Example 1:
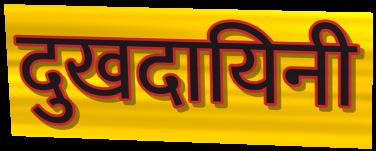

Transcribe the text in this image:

दुखदायिनी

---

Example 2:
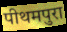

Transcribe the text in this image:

पीथमपुरा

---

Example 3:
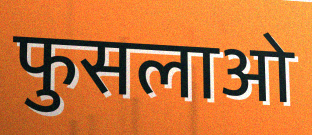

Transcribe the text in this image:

फुसलाओ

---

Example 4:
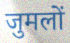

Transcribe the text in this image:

जुमलों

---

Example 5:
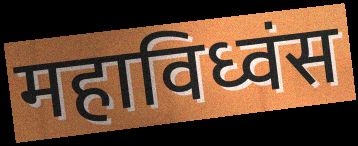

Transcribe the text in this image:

महाविध्वंस